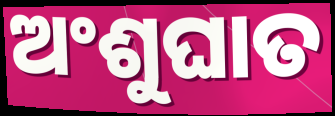
ଅଂଶୁଘାତ